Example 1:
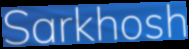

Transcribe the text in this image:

Sarkhosh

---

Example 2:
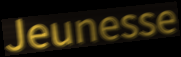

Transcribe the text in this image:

Jeunesse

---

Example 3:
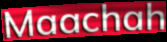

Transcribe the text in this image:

Maachah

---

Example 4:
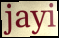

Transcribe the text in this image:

jayi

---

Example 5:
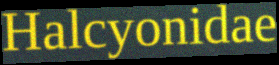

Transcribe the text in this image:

Halcyonidae